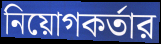
নিয়োগকর্তার